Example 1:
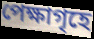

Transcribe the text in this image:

পেক্ষাগৃহে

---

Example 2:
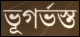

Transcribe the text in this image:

ভূগর্ভস্ত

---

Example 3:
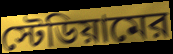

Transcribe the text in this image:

স্টেডিয়ামের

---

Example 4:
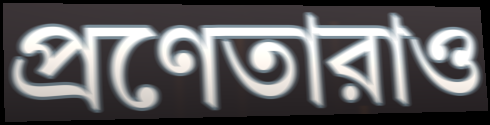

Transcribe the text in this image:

প্রণেতারাও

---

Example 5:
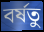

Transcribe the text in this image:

বর্ষতু